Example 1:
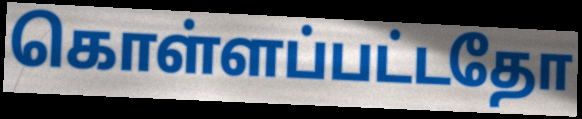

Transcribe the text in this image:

கொள்ளப்பட்டதோ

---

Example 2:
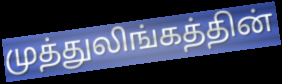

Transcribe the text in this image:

முத்துலிங்கத்தின்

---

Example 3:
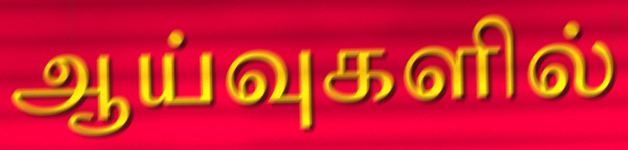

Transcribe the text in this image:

ஆய்வுகளில்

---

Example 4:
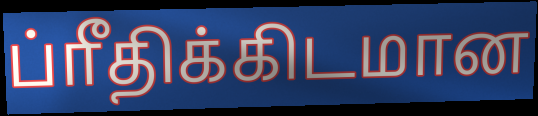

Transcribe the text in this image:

ப்ரீதிக்கிடமான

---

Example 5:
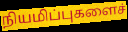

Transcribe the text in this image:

நியமிப்புகளைச்